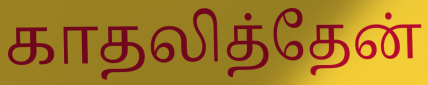
காதலித்தேன்